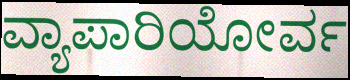
ವ್ಯಾಪಾರಿಯೋರ್ವ